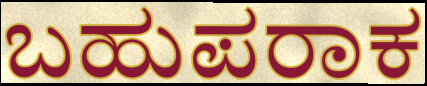
ಬಹುಪರಾಕ